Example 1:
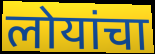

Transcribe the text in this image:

लोयांचा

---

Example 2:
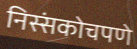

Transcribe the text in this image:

निस्संकोचपणे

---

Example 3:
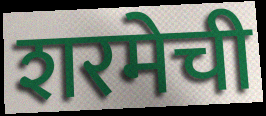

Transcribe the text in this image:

शरमेची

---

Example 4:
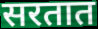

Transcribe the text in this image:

सरतात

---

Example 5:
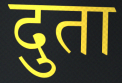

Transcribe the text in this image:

दुता